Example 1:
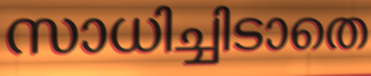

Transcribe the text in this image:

സാധിച്ചിടാതെ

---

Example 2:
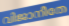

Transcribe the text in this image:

വിജാനീതേ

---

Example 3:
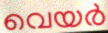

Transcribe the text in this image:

വെയർ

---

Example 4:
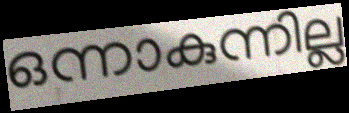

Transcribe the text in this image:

ഒന്നാകുന്നില്ല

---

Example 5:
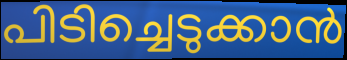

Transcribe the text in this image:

പിടിച്ചെടുക്കാൻ